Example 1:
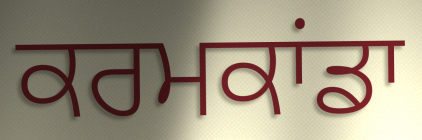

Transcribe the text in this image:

ਕਰਮਕਾਂਡਾ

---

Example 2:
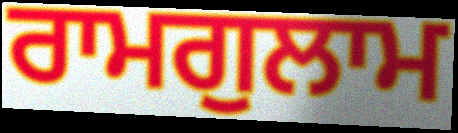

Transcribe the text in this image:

ਰਾਮਗੁਲਾਮ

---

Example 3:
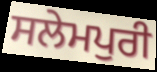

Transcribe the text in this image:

ਸਲੇਮਪੁਰੀ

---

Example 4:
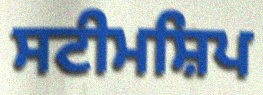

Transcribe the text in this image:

ਸਟੀਮਸ਼ਿਪ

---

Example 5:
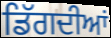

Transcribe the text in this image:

ਡਿੱਗਦੀਆਂ